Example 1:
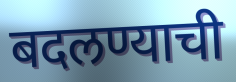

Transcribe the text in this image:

बदलण्याची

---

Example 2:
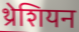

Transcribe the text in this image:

थ्रेशियन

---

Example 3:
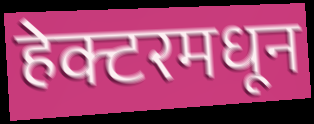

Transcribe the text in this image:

हेक्टरमधून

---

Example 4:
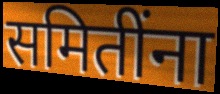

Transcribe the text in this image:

समितींना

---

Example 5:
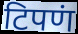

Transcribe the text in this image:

टिपणं